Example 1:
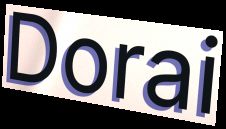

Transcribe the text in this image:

Dorai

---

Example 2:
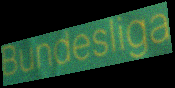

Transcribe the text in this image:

Bundesliga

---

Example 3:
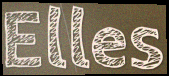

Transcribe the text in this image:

Elles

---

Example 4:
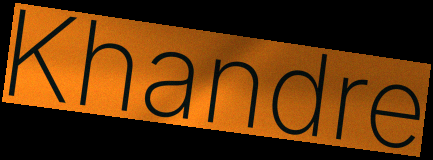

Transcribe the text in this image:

Khandre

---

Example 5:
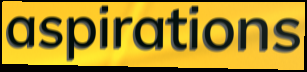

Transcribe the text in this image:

aspirations